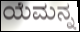
ಯೆಮನ್ನ